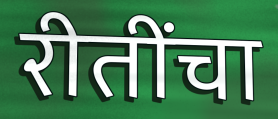
रीतींचा